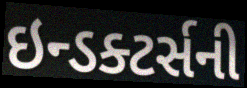
ઇન્ડક્ટર્સની